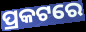
ପ୍ରକଟରେ